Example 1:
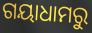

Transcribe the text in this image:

ଗୟାଧାମରୁ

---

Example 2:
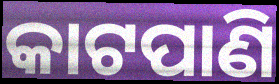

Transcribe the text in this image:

କାଟପାଣି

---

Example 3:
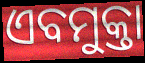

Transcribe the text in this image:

ଏବମୁକ୍ତା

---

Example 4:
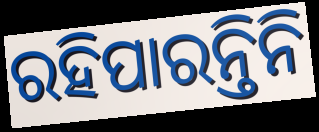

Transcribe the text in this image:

ରହିପାରନ୍ତିନି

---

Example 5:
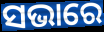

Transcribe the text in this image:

ସଭାରେ